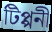
টিপ্পনী